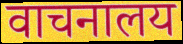
वाचनालय